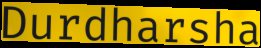
Durdharsha